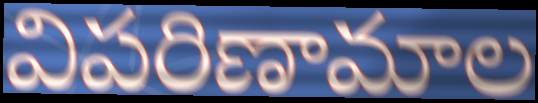
విపరిణామాల